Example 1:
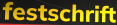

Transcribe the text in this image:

festschrift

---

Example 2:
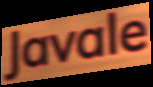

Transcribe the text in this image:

Javale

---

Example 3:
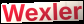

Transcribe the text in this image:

Wexler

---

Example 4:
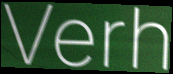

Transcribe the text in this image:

Verh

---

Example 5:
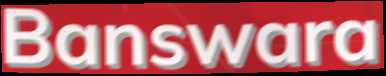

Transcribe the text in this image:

Banswara